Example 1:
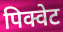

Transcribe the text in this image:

पिक्वेट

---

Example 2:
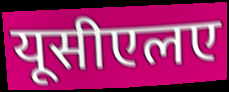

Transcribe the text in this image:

यूसीएलए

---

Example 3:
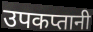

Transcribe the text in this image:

उपकप्तानी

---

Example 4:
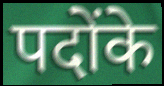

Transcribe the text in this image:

पदोंके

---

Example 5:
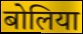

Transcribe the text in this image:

बोलिया